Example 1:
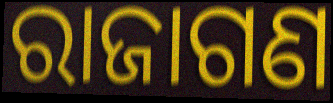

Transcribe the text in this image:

ରାଜାଗଣ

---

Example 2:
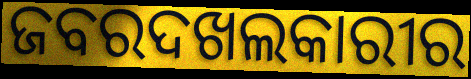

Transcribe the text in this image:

ଜବରଦଖଲକାରୀର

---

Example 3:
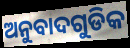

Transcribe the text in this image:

ଅନୁବାଦଗୁଡିକ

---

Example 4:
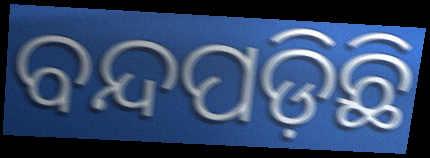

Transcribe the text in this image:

ବନ୍ଦପଡ଼ିଛି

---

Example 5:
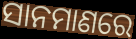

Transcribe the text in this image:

ସାନମାଣରେ